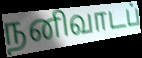
நனிவாடப்